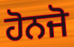
ਹੋਨਜੋ